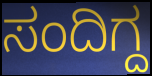
ಸಂದಿಗ್ದ